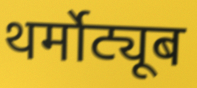
थर्मोट्यूब